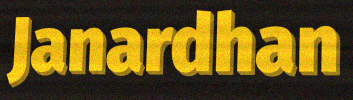
Janardhan